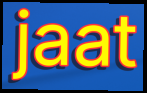
jaat